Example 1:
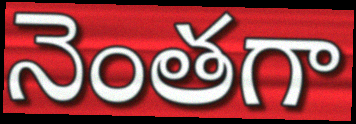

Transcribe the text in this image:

నెంతగా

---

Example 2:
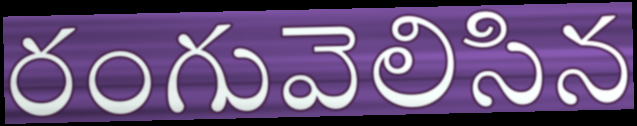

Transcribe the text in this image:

రంగువెలిసిన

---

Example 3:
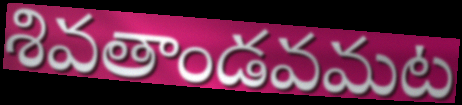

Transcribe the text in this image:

శివతాండవమట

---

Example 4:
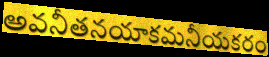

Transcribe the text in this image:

అవనీతనయాకమనీయకరం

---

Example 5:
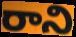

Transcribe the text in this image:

రాని